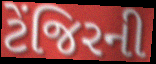
ટેંજિરની